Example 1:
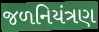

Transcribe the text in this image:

જળનિયંત્રણ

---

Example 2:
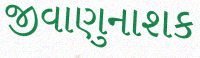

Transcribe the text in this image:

જીવાણુનાશક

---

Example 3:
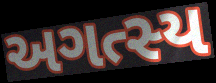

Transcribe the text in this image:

અગત્સ્ય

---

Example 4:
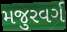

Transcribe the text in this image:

મજુરવર્ગ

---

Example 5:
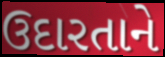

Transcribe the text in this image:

ઉદારતાને